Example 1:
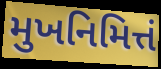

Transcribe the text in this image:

મુખનિમિત્તં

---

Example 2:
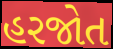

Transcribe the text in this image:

હરજોત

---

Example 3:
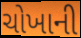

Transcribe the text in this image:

ચોખાની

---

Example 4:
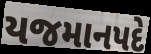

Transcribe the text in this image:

યજમાનપદે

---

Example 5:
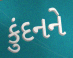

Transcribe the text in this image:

કુંદનને